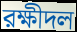
রক্ষীদল